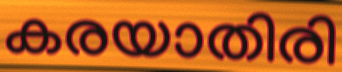
കരയാതിരി